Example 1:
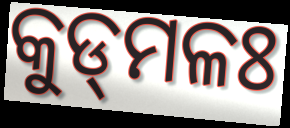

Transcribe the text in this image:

କୁଡ୍‌ମଳଃ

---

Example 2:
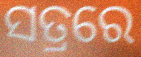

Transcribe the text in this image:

ସତ୍ରରେ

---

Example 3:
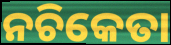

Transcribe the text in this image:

ନଚିକେତା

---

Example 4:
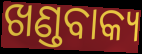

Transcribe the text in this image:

ଖଣ୍ଡବାକ୍ୟ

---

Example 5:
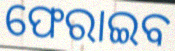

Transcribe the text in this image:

ଫେରାଇବ